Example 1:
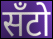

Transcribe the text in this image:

सँटो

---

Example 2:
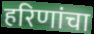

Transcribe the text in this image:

हरिणांचा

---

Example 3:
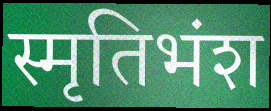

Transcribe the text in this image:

स्मृतिभंश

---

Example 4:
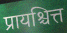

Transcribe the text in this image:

प्रायश्चित्त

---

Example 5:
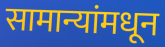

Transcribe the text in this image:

सामान्यांमधून